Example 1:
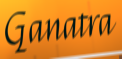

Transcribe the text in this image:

Ganatra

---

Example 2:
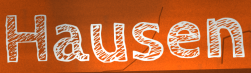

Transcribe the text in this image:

Hausen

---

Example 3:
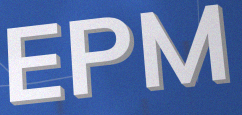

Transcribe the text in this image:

EPM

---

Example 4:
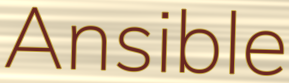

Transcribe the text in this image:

Ansible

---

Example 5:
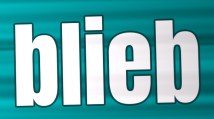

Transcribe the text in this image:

blieb